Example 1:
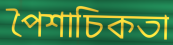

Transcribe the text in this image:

পৈশাচিকতা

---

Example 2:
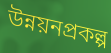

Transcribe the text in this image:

উন্নয়নপ্রকল্প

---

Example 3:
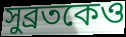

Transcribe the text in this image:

সুব্রতকেও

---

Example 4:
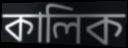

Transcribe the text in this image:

কালিক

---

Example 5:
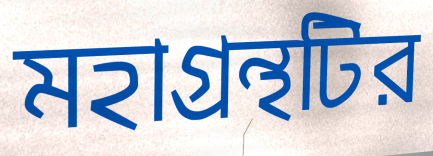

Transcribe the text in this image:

মহাগ্রন্থটির